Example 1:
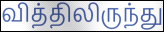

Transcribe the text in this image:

வித்திலிருந்து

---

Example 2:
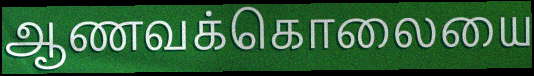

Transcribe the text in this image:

ஆணவக்கொலையை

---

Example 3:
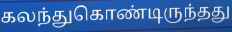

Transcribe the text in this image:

கலந்துகொண்டிருந்தது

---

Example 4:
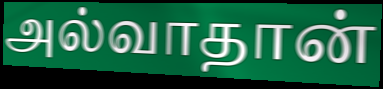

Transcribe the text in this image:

அல்வாதான்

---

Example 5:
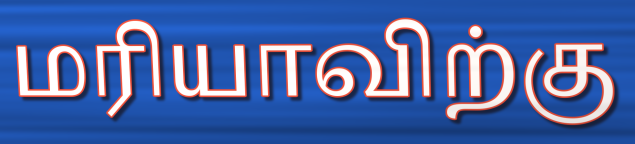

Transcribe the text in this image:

மரியாவிற்கு